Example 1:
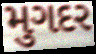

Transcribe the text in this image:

મુગદર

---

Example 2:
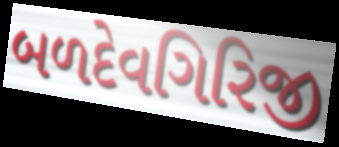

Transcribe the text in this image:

બળદેવગિરિજી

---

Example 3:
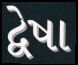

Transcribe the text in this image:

દ્વેષા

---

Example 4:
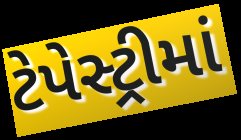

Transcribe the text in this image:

ટેપેસ્ટ્રીમાં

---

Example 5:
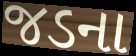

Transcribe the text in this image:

જડના